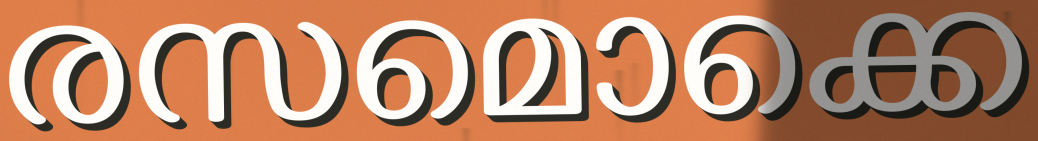
രസമൊക്കെ